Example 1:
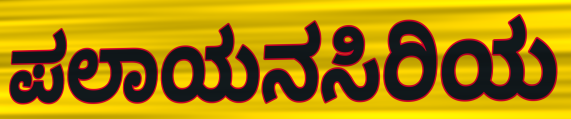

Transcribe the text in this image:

ಪಲಾಯನಸಿರಿಯ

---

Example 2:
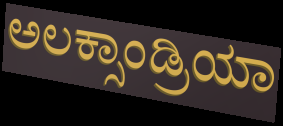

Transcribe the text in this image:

ಅಲಕ್ಸಾಂಡ್ರಿಯಾ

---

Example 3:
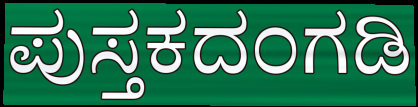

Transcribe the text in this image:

ಪುಸ್ತಕದಂಗಡಿ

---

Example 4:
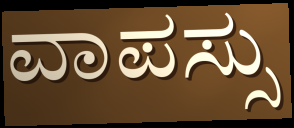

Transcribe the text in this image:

ವಾಪಸ್ಸು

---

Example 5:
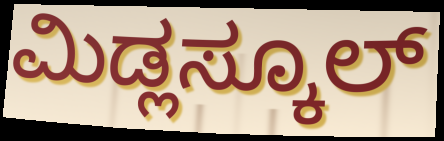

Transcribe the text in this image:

ಮಿಡ್ಲಸ್ಕೂಲ್